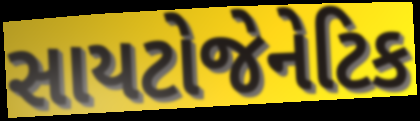
સાયટોજેનેટિક